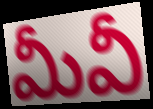
మీవీ